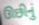
ઊછીનું